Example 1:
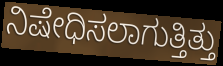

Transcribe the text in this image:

ನಿಷೇಧಿಸಲಾಗುತ್ತಿತ್ತು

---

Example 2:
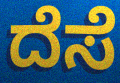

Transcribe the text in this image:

ದೆಸೆ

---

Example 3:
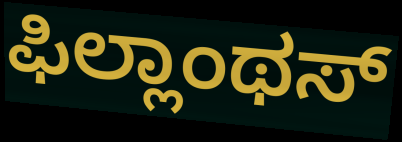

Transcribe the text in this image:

ಫಿಲ್ಲಾಂಥಸ್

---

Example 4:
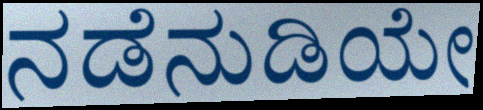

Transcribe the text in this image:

ನಡೆನುಡಿಯೇ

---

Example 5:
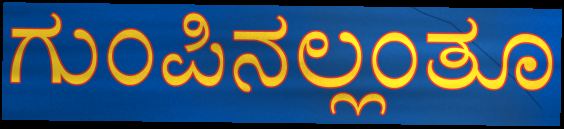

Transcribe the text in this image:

ಗುಂಪಿನಲ್ಲಂತೂ